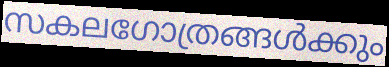
സകലഗോത്രങ്ങൾക്കും